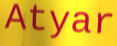
Atyar